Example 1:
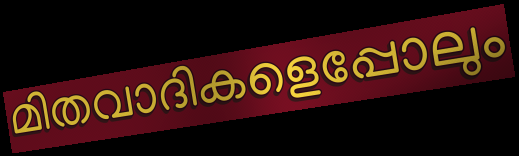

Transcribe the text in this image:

മിതവാദികളെപ്പോലും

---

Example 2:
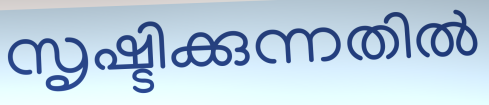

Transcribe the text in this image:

സൃഷ്ടിക്കുന്നതിൽ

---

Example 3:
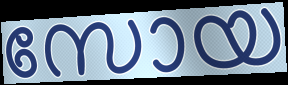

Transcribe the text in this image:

സോയ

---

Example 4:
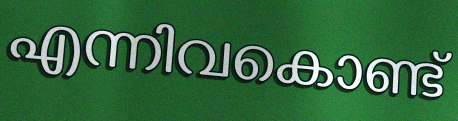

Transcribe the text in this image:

എന്നിവകൊണ്ട്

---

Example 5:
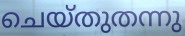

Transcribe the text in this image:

ചെയ്തുതന്നു